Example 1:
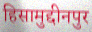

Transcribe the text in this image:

हिसामुद्दीनपुर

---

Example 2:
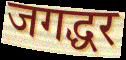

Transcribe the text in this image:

जगद्धर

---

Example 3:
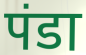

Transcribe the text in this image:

पंडा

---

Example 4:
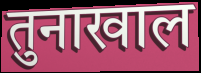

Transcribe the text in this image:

तुनाखाल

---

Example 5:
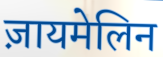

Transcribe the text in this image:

ज़ायमेलिन